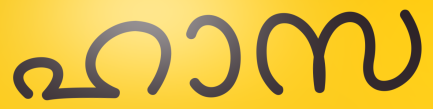
ഹാസ